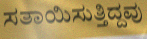
ಸತಾಯಿಸುತ್ತಿದ್ದವು